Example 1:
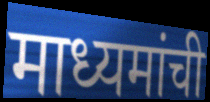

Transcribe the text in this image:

माध्यमांची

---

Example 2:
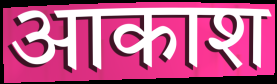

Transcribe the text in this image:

आकाश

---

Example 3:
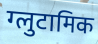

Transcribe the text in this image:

ग्लुटामिक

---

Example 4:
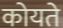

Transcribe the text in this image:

कोयते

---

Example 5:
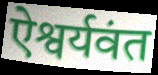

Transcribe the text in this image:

ऐश्वर्यवंत